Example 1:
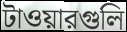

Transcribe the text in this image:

টাওয়ারগুলি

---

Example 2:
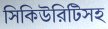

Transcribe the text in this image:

সিকিউরিটিসহ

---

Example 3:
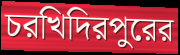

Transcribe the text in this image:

চরখিদিরপুরের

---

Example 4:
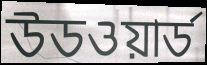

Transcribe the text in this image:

উডওয়ার্ড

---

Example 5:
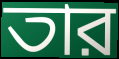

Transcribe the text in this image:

তার